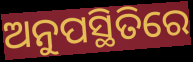
ଅନୁପସ୍ଥିତିରେ